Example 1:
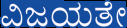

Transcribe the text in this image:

ವಿಜಯತೇ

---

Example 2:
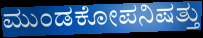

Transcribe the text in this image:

ಮುಂಡಕೋಪನಿಷತ್ತು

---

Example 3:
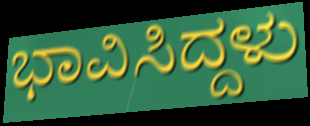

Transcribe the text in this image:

ಭಾವಿಸಿದ್ದಳು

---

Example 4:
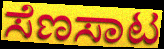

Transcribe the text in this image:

ಸೆಣಸಾಟ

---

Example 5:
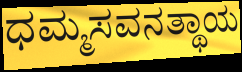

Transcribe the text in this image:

ಧಮ್ಮಸವನತ್ಥಾಯ